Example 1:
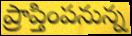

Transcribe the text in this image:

ప్రాప్తింపనున్న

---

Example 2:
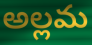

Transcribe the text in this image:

అల్లమ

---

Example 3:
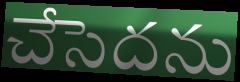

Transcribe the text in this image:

చేసెదను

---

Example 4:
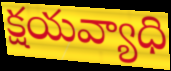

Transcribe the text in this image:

క్షయవ్యాధి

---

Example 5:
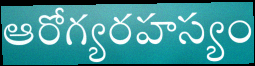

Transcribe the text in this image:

ఆరోగ్యరహస్యం